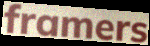
framers